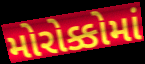
મોરોક્કોમાં